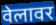
वेलावर